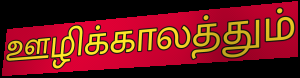
ஊழிக்காலத்தும்